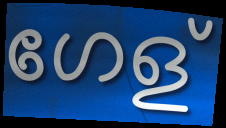
ഗേള്